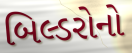
બિલ્ડરોનો